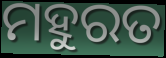
ମହୁରତ